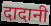
दादानी